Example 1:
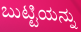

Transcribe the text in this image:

ಬುಟ್ಟಿಯನ್ನು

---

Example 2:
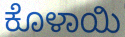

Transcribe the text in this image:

ಕೊಳಾಯಿ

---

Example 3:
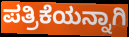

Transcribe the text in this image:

ಪತ್ರಿಕೆಯನ್ನಾಗಿ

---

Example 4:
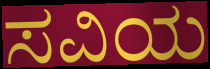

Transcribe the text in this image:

ಸವಿಯ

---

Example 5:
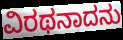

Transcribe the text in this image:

ವಿರಥನಾದನು